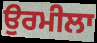
ਉਰਮੀਲਾ